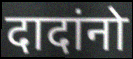
दादांनो